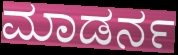
ಮಾಡರ್ನ